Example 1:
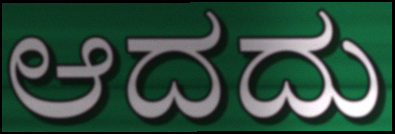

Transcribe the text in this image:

ಆದದು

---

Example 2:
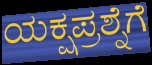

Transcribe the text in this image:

ಯಕ್ಷಪ್ರಶ್ನೆಗೆ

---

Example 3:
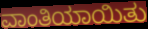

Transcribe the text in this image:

ವಾಂತಿಯಾಯಿತು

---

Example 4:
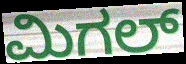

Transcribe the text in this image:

ಮಿಗಲ್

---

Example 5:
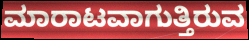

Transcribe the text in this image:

ಮಾರಾಟವಾಗುತ್ತಿರುವ